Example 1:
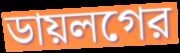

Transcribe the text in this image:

ডায়লগের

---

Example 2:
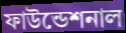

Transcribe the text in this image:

ফাউন্ডেশনাল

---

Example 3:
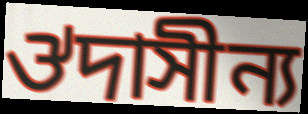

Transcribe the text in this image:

ঔদাসীন্য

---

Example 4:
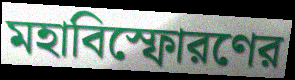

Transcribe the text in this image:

মহাবিস্ফোরণের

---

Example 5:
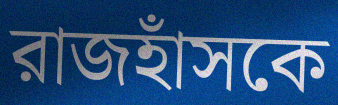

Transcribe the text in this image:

রাজহাঁসকে